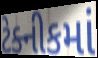
ટેક્નીકમાં